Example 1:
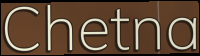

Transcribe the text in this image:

Chetna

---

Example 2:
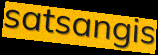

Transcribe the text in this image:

satsangis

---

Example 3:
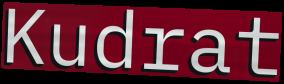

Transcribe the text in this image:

Kudrat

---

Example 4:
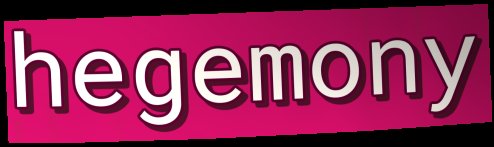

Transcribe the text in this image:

hegemony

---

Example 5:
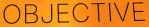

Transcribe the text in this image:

OBJECTIVE